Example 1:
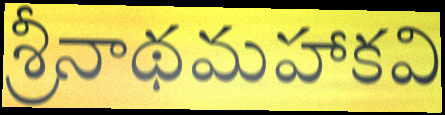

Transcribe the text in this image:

శ్రీనాథమహాకవి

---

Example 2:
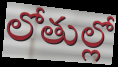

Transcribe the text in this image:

లోతుల్లో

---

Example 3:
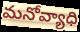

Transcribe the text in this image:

మనోవ్యాధి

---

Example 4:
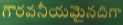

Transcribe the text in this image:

గౌరవనీయమైనదిగా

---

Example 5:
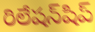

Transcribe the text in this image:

రిలేషన్‌షిప్